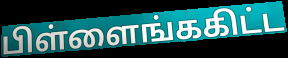
பிள்ளைங்ககிட்ட